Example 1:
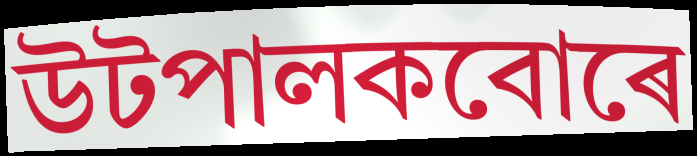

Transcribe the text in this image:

উটপালকবোৰে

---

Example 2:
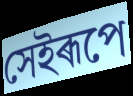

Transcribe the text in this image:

সেইৰূপে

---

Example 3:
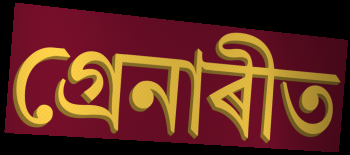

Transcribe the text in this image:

গ্ৰেনাৰীত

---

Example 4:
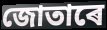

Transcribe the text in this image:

জোতাৰে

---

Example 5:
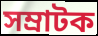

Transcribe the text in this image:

সম্ৰাটক